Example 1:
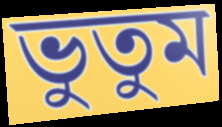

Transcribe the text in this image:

ভুতুম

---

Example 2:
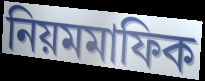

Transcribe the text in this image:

নিয়মমাফিক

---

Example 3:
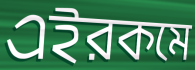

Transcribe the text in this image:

এইরকমে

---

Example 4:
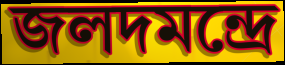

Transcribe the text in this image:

জলদমন্দ্রে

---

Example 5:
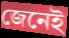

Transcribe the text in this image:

জেনেই